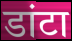
डांटा